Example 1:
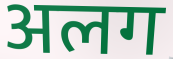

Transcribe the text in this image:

अलग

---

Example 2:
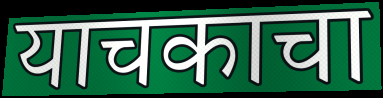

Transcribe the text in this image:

याचकाचा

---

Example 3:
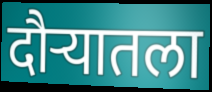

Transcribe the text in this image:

दौऱ्यातला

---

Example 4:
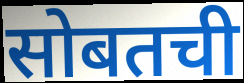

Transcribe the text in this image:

सोबतची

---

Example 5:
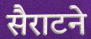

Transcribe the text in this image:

सैराटने